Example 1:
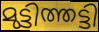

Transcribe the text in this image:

മുട്ടിത്തട്ടി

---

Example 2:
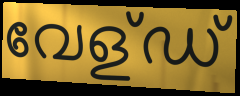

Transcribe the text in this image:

വേള്ഡ്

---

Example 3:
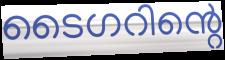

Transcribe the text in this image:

ടൈഗറിന്റെ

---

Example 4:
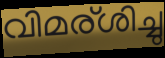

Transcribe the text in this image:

വിമര്ശിച്ചു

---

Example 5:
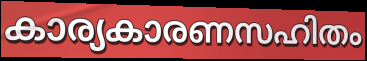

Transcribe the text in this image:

കാര്യകാരണസഹിതം